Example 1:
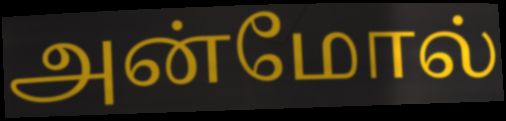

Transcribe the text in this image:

அன்மோல்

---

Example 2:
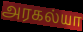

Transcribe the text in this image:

அரகல்யா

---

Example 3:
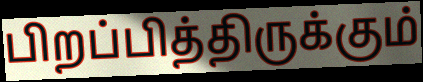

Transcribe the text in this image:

பிறப்பித்திருக்கும்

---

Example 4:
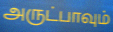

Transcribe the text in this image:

அருட்பாவும்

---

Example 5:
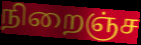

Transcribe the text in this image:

நிறைஞ்ச